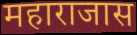
महाराजास